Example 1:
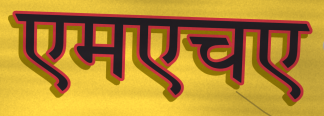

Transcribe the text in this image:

एमएचए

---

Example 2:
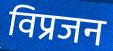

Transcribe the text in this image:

विप्रजन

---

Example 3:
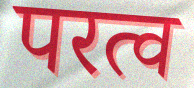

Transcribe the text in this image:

परत्व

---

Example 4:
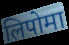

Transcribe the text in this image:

लिपोमा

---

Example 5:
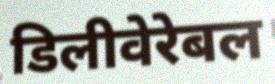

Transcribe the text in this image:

डिलीवेरेबल